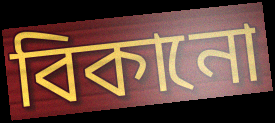
বিকানো